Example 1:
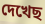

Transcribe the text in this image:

দেখেছ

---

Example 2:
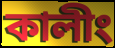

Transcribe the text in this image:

কালীং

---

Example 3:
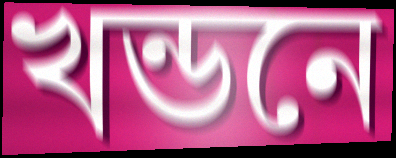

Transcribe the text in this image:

খন্ডনে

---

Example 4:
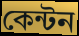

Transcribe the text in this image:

কেন্টন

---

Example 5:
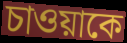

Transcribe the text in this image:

চাওয়াকে